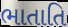
ભાતાતિ